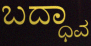
ಬದ್ಧ್ವಾ